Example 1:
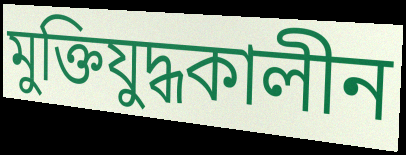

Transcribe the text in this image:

মুক্তিযুদ্ধকালীন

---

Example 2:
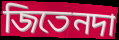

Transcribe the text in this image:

জিতেনদা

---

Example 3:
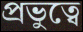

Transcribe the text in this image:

প্রভুত্বে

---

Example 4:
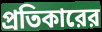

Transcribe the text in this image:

প্রতিকারের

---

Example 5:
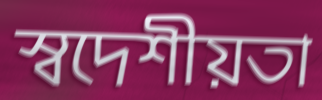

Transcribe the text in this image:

স্বদেশীয়তা